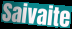
Saivaite